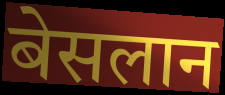
बेसलान